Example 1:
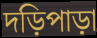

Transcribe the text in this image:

দড়িপাড়া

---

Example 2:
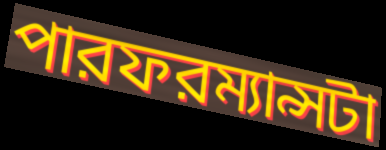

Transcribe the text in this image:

পারফরম্যান্সটা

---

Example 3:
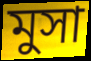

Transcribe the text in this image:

মুসা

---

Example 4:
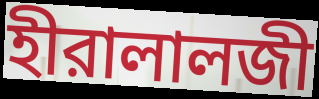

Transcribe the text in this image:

হীরালালজী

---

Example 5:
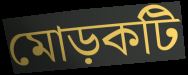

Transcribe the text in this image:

মোড়কটি